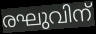
രഘുവിന്